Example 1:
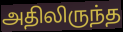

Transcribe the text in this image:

அதிலிருந்த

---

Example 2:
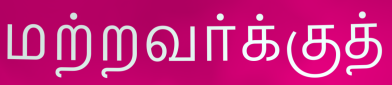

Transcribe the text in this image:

மற்றவர்க்குத்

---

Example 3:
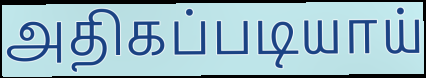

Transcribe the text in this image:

அதிகப்படியாய்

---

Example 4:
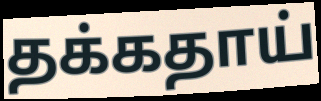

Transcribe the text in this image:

தக்கதாய்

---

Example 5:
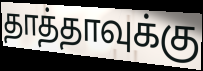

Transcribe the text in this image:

தாத்தாவுக்கு